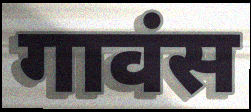
गावंस